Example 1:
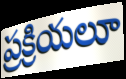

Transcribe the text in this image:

ప్రక్రియలూ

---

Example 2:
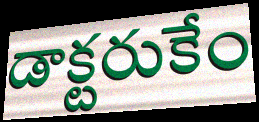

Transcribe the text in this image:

డాక్టరుకేం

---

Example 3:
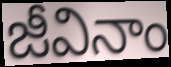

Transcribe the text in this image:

జీవినాం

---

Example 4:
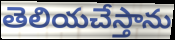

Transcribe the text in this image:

తెలియచేస్తాను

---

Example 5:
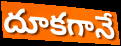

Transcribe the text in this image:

దూకగానే